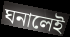
ঘনালেই